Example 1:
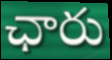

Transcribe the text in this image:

ఛారు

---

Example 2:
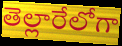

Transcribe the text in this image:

తెల్లారేలోగా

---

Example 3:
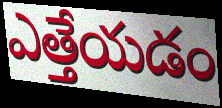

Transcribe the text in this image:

ఎత్తేయడం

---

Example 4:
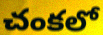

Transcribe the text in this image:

చంకలో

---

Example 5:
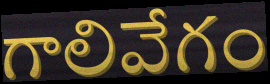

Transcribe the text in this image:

గాలివేగం